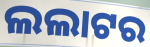
ଲଲାଟର